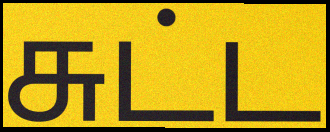
சுட்ட